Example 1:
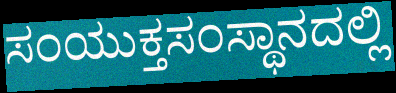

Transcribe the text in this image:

ಸಂಯುಕ್ತಸಂಸ್ಥಾನದಲ್ಲಿ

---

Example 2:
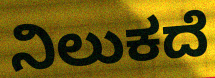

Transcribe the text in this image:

ನಿಲುಕದೆ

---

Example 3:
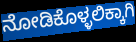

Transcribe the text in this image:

ನೋಡಿಕೊಳ್ಳಲಿಕ್ಕಾಗಿ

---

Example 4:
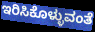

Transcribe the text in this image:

ಇರಿಸಿಕೊಳ್ಳುವಂತೆ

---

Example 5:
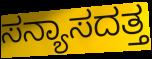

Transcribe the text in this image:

ಸನ್ಯಾಸದತ್ತ